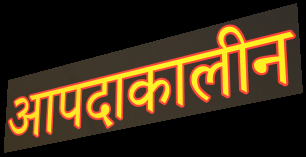
आपदाकालीन